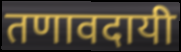
तणावदायी